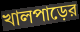
খালপাড়ের